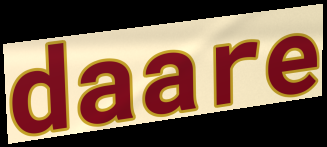
daare